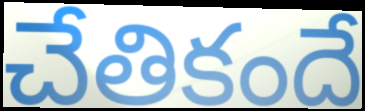
చేతికందే